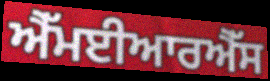
ਐੱਮਈਆਰਐੱਸ